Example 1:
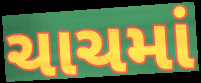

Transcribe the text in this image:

ચાચમાં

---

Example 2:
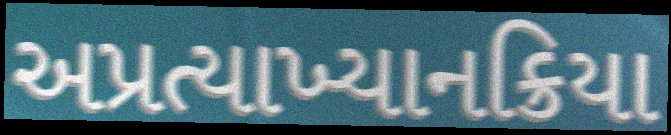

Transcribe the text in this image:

અપ્રત્યાખ્યાનક્રિયા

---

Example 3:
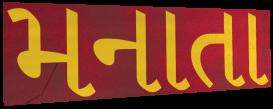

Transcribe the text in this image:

મનાતા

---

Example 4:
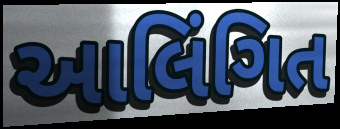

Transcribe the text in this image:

આલિંગિત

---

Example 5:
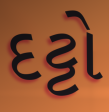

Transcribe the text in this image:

દટ્ટો